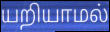
யறியாமல்